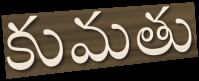
కుమతు